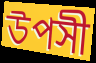
উপসী